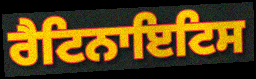
ਰੈਟਿਨਾਇਟਿਸ